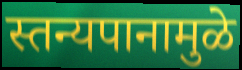
स्तन्यपानामुळे